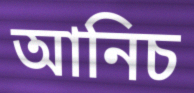
আনিচ